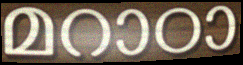
മറാഠാ